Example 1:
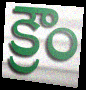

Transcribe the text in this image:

క్రౌం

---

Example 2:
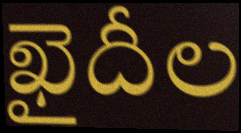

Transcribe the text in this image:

ఖైదీల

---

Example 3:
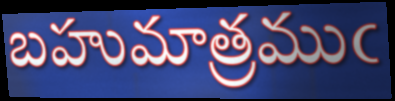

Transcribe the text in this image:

బహుమాత్రముఁ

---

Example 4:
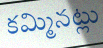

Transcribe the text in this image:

కమ్మినట్లు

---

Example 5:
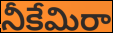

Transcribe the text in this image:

నీకేమిరా